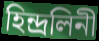
হিন্দ্রলিনী